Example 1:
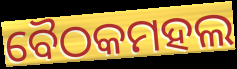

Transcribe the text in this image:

ବୈଠକମହଲ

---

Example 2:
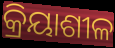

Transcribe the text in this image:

କ୍ରିୟାଶୀଳ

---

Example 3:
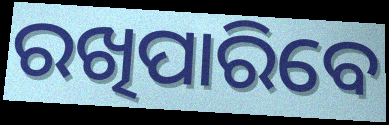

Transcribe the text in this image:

ରଖିପାରିବେ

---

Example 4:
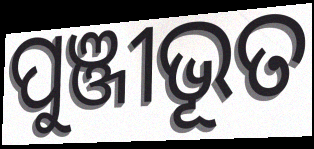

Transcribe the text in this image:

ପୁଞ୍ଜୀଭୂତ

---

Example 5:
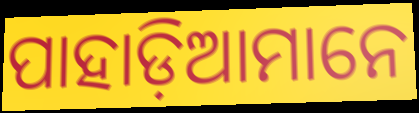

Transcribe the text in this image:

ପାହାଡ଼ିଆମାନେ